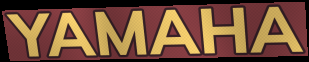
YAMAHA